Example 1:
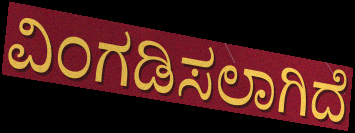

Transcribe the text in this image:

ವಿಂಗಡಿಸಲಾಗಿದೆ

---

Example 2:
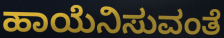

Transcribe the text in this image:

ಹಾಯೆನಿಸುವಂತೆ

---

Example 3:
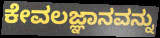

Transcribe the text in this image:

ಕೇವಲಜ್ಞಾನವನ್ನು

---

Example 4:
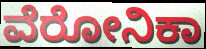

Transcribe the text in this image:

ವೆರೋನಿಕಾ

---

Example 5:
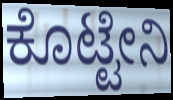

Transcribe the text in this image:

ಕೊಟ್ಟೇನಿ